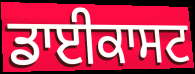
ਡਾਈਕਾਸਟ